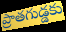
ప్రాతగుడ్డకు